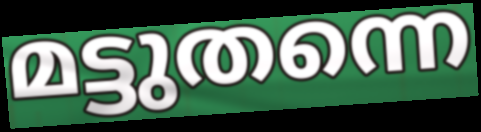
മട്ടുതന്നെ